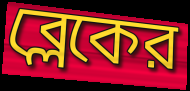
ব্লেকের